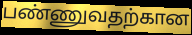
பண்ணுவதற்கான